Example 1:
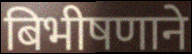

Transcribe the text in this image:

बिभीषणाने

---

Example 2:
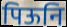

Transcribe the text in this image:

पिऊनि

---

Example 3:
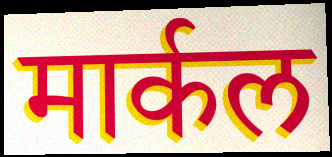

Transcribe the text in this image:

मार्कल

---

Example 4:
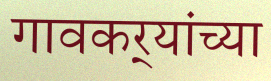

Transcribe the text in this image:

गावकर्यांच्या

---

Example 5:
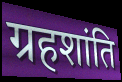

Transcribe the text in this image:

ग्रहशांति